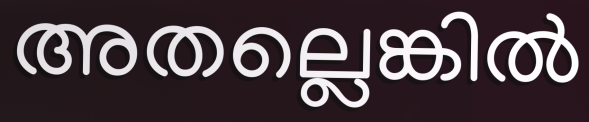
അതല്ലെങ്കിൽ